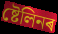
ষ্টেলিনৰ